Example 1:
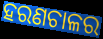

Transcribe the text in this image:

ହରଣଚାଳର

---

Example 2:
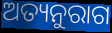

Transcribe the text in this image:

ଅତ୍ୟନୁରାଗ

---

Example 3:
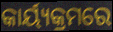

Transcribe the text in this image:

କାର୍ୟ୍ୟକ୍ରମରେ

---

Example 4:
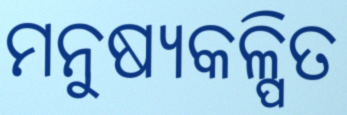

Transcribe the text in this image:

ମନୁଷ୍ୟକଳ୍ପିତ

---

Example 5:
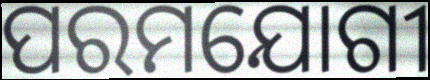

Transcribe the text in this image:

ପରମଯୋଗୀ